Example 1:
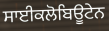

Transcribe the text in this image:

ਸਾਈਕਲੋਬਿਊਟੇਨ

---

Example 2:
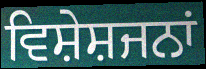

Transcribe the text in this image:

ਵਿਸ਼ੇਸ਼ਜਨਾਂ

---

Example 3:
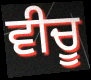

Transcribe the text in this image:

ਵੀਚੂ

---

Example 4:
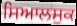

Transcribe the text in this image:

ਸਿਆਲਸੁਕ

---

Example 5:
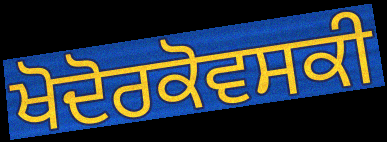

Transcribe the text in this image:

ਖੋਦੋਰਕੋਵਸਕੀ